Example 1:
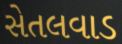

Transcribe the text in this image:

સેતલવાડ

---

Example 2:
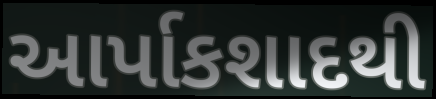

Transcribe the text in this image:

આર્પાકશાદથી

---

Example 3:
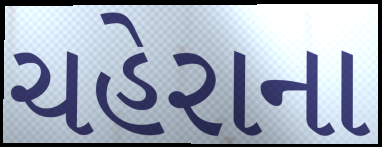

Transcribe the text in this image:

ચહેરાના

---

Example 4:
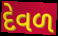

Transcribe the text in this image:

દેવળ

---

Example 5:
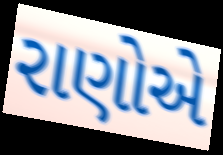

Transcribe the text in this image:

રાણોએ